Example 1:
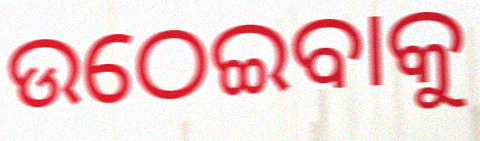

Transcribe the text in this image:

ଉଠେଇବାକୁ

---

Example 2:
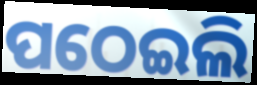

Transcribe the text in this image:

ପଠେଇଲି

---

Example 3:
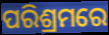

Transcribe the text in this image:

ପରିଶ୍ରମରେ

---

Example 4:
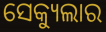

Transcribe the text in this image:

ସେକ୍ୟୁଲାର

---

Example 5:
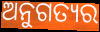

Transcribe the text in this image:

ଅନୁଗତ୍ୟର